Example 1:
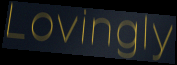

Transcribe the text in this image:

Lovingly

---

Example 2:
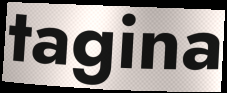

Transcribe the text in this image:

tagina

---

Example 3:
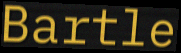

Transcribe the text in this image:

Bartle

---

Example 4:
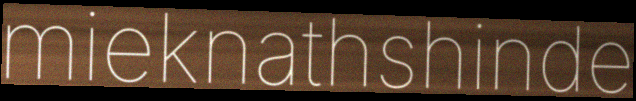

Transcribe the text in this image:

mieknathshinde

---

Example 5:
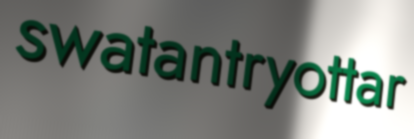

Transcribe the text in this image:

swatantryottar